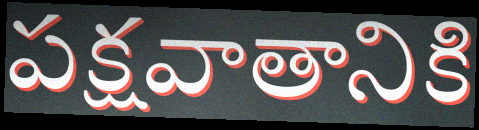
పక్షవాతానికి